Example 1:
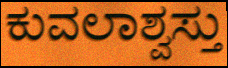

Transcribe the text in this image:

ಕುವಲಾಶ್ವಸ್ತು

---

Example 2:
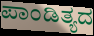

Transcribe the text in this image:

ಪಾಂಡಿತ್ಯದ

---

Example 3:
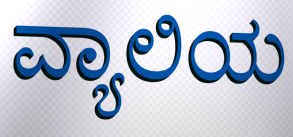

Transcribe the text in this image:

ವ್ಯಾಲಿಯ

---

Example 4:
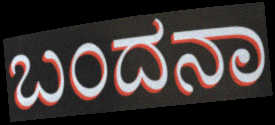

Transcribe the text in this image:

ಬಂದನಾ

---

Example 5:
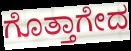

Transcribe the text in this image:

ಗೊತ್ತಾಗೇದ